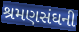
શ્રમણસંઘની